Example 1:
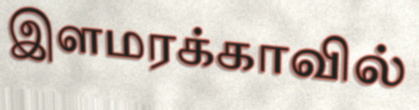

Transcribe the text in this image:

இளமரக்காவில்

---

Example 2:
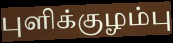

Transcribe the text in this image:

புளிக்குழம்பு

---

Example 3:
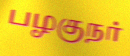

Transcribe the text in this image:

பழகுநர்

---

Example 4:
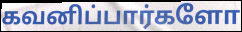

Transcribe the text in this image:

கவனிப்பார்களோ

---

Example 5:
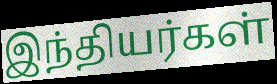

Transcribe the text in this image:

இந்தியர்கள்